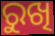
ରୁଖି